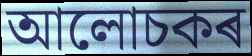
আলোচকৰ